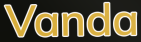
Vanda